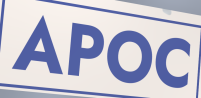
APOC